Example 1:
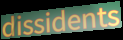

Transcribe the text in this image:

dissidents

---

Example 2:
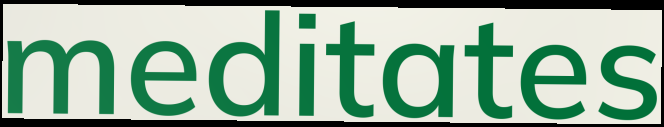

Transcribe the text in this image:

meditates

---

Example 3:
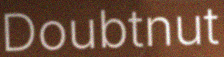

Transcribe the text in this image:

Doubtnut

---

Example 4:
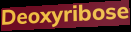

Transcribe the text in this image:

Deoxyribose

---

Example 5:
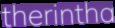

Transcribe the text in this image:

therintha